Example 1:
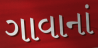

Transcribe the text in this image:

ગાવાનાં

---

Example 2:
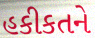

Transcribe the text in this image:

હકીકતને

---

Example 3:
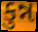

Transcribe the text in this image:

કુન્ન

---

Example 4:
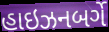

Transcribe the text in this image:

હાઇઝનબર્ગે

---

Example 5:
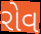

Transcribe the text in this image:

રોવ